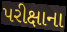
પરીક્ષાના